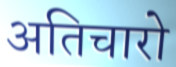
अतिचारो